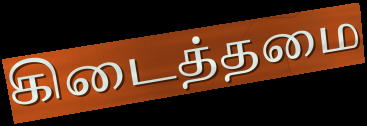
கிடைத்தமை